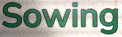
Sowing